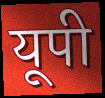
यूपी